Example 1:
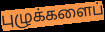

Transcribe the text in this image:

புழுக்களைப்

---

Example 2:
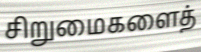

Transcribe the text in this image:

சிறுமைகளைத்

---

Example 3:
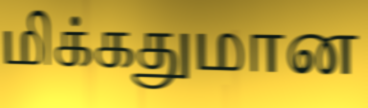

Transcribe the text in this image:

மிக்கதுமான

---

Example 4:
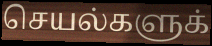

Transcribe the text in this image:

செயல்களுக்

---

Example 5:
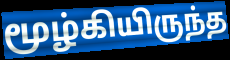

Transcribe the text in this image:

மூழ்கியிருந்த